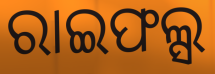
ରାଇଫଲ୍ସ